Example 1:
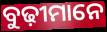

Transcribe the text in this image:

ବୁଢ଼ୀମାନେ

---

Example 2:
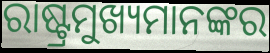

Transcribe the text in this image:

ରାଷ୍ଟ୍ରମୁଖ୍ୟମାନଙ୍କର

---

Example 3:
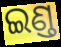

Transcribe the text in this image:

ଇଣ୍ଡ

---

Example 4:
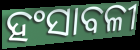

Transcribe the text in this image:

ହଂସାବଳୀ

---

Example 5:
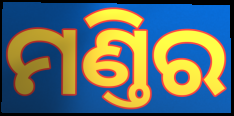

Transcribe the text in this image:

ମଣ୍ତିର